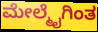
ಮೇಲ್ಮೈಗಿಂತ